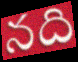
నది